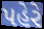
પહેરે